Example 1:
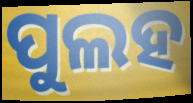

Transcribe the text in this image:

ପୁଲହ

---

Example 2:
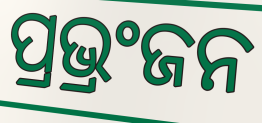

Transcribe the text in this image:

ପ୍ରଭ୍ରଂଜନ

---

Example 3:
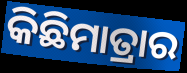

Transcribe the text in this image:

କିଛିମାତ୍ରାର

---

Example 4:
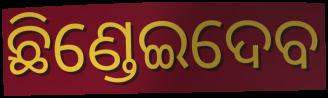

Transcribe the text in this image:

ଛିଣ୍ଡେଇଦେବ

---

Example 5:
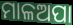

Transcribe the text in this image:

ମାଳଅପା